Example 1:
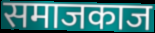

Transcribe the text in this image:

समाजकाज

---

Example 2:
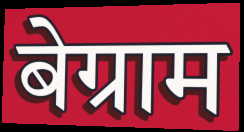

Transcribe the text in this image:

बेग्राम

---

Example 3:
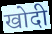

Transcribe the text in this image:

खोदी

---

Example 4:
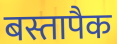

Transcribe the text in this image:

बस्तापैक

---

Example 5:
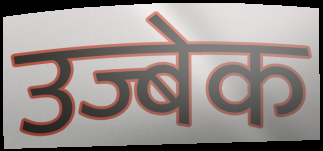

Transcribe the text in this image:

उज्बेक